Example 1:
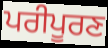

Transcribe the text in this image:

ਪਰੀਪੂਰਣ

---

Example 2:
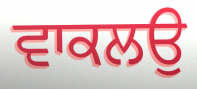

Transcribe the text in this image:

ਵਾਕਲਉ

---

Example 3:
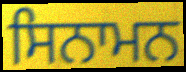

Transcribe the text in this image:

ਸਿਨਾਮਨ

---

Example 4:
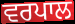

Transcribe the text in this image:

ਵਰਪਾਲ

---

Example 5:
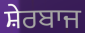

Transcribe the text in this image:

ਸ਼ੇਰਬਾਜ